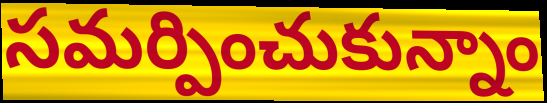
సమర్పించుకున్నాం